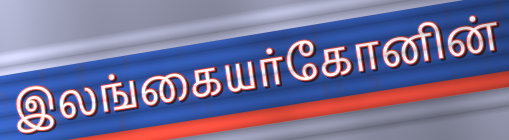
இலங்கையர்கோனின்